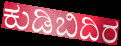
ಕುಡಿಬಿದಿರ